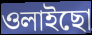
ওলাইছো